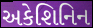
અકેશિનિન